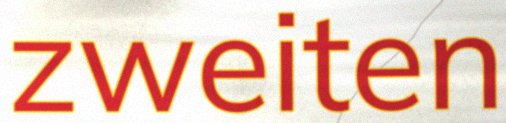
zweiten